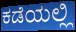
ಕಡೆಯಲ್ಲಿ